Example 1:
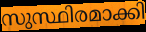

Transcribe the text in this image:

സുസ്ഥിരമാക്കി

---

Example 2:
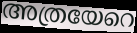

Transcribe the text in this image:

അത്രയേറെ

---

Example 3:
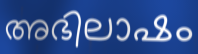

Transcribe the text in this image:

അഭിലാഷം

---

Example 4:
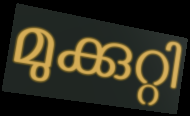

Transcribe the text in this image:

മുക്കുറ്റി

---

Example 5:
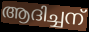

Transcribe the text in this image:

ആദിച്ചന്